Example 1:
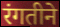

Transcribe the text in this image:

रंगतीने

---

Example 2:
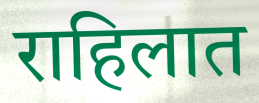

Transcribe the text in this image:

राहिलात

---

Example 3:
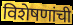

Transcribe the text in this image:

विशेषणांची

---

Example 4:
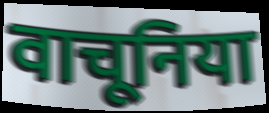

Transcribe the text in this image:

वाचूनिया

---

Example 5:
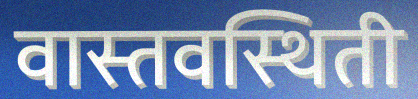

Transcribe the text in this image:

वास्तवस्थिती